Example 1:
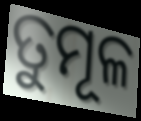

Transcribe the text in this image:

ତୁମୂଳ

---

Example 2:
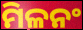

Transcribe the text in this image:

ମିଳନଂ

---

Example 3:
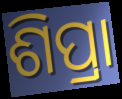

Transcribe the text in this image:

ଶିପ୍ରା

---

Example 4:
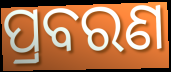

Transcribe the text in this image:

ପ୍ରବରଣ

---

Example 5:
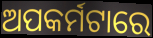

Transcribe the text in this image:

ଅପକର୍ମଟାରେ